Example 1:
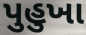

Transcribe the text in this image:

પુહુખા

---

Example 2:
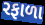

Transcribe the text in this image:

રફાળા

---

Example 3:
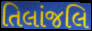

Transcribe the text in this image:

તિલાંજલિ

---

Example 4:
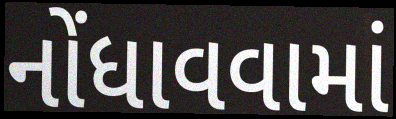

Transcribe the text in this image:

નોંધાવવામાં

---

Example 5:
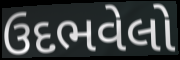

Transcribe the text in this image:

ઉદભવેલો